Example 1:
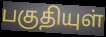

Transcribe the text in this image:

பகுதியுள்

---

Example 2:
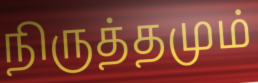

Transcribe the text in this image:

நிருத்தமும்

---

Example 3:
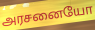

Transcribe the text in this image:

அரசனையோ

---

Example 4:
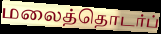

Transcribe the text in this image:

மலைத்தொடர்ப்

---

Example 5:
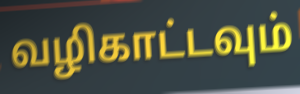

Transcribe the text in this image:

வழிகாட்டவும்